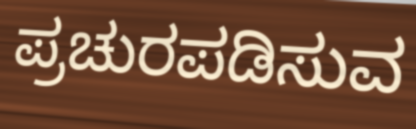
ಪ್ರಚುರಪಡಿಸುವ